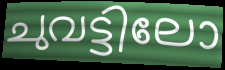
ചുവട്ടിലോ